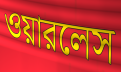
ওয়ারলেস